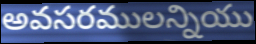
అవసరములన్నియు